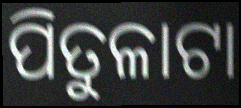
ପିତୁଳାଟା